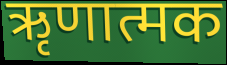
ऋृणात्मक